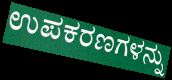
ಉಪಕರಣಗಳನ್ನು